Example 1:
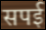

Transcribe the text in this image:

सपई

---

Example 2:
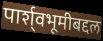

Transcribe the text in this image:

पार्श्वभूमीबद्दल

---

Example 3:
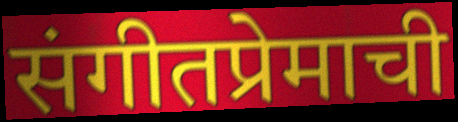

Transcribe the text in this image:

संगीतप्रेमाची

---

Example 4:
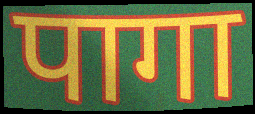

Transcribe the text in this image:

पागा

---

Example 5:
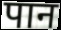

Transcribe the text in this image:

पान